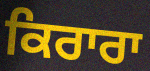
ਕਿਰਾਰਾ